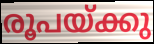
രൂപയ്ക്കു